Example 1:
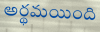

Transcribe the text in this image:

అర్థమయింది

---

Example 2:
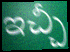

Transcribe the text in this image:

ఇచ్చీ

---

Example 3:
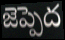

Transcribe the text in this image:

జెప్పెద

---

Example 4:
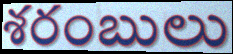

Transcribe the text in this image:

శరంబులు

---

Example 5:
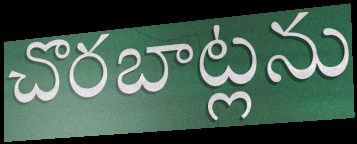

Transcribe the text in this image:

చొరబాట్లను